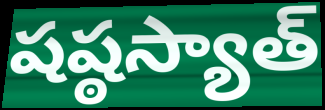
షష్ఠస్యాత్